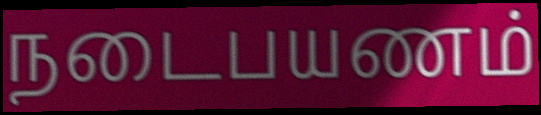
நடைபயணம்